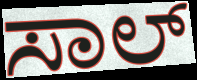
ಸಾಲ್